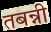
तबन्नी